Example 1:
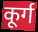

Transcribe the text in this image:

कूर्ग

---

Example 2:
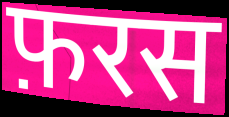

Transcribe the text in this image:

फ़रस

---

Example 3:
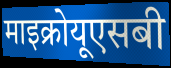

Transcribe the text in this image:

माइक्रोयूएसबी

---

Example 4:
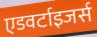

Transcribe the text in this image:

एडवर्टाइजर्स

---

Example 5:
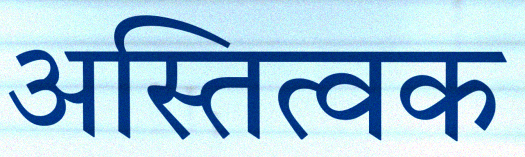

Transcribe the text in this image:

अस्तित्वक